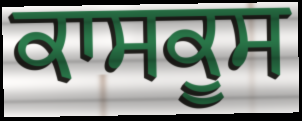
ਕਾਸਕੂਸ